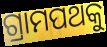
ଗ୍ରାମପଥକୁ